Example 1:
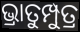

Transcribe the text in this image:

ଭ୍ରାତୁମ୍ପୁତ୍ର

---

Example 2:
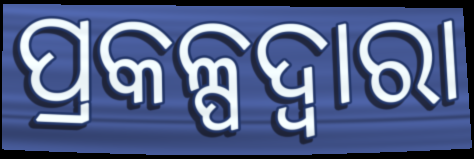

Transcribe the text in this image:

ପ୍ରକଳ୍ପଦ୍ୱାରା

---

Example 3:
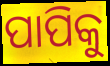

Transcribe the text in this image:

ପାପିକୁ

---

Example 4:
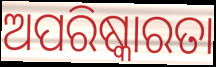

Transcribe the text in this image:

ଅପରିଷ୍କାରତା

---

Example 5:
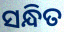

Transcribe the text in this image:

ସନ୍ଧିତ